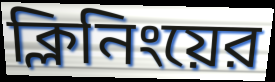
ক্লিনিংয়ের